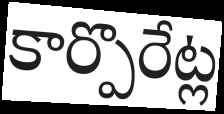
కార్పొరేట్ల